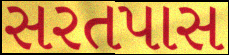
સરતપાસ